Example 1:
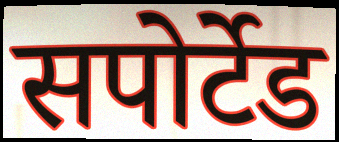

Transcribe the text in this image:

सपोर्टेड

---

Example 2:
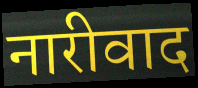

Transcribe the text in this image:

नारीवाद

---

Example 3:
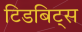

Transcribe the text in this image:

टिडबिट्स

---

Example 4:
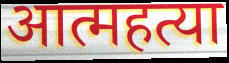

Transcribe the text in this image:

आत्महत्या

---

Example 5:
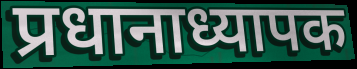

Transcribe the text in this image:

प्रधानाध्यापक